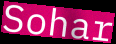
Sohar